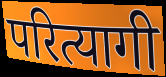
परित्यागी